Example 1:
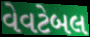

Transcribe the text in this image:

વેવટેબલ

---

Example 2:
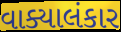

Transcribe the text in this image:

વાક્યાલંકાર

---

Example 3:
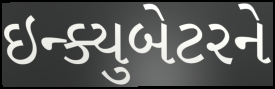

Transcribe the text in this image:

ઇન્ક્યુબેટરને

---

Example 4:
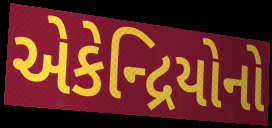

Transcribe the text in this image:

એકેન્દ્રિયોનો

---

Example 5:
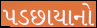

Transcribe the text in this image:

પડછાયાનો